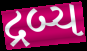
દ્રબ્ય